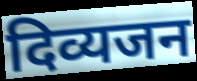
दिव्यजन